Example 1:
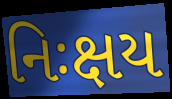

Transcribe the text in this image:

નિઃક્ષય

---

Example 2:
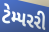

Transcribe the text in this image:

ટેમ્પરરી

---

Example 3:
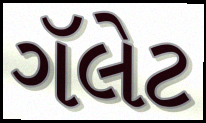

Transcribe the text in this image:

ગૅલેટ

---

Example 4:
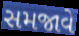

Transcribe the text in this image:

સમજાવે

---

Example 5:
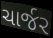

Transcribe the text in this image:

ચાર્જર